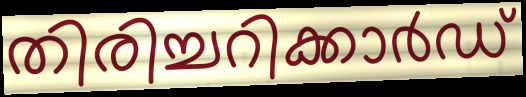
തിരിച്ചറിക്കാർഡ്